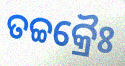
ତଚ୍ଚକ୍ରୈଃ